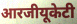
आरजीयूकेटी